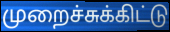
முறைச்சுக்கிட்டு